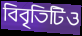
বিবৃতিটিও